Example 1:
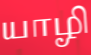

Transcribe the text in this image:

யாழி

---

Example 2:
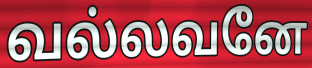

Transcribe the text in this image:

வல்லவனே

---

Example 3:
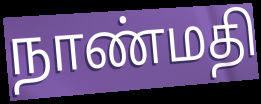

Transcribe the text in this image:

நாண்மதி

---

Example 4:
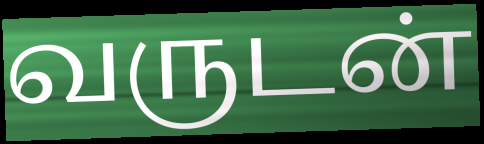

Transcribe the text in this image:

வருடன்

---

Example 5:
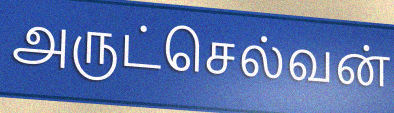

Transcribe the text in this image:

அருட்செல்வன்